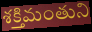
శక్తిమంతుని